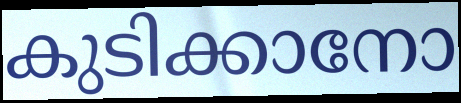
കുടിക്കാനോ